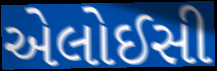
એલોઈસી